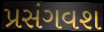
પ્રસંગવશ